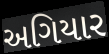
અગિયાર